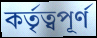
কর্তৃত্বপূর্ণ